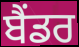
ਬੈਂਡਰ